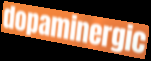
dopaminergic